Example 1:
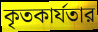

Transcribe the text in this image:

কৃতকার্যতার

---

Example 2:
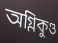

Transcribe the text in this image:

অগ্নিকুণ্ড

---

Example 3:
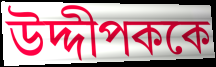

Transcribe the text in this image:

উদ্দীপককে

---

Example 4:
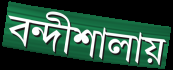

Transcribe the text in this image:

বন্দীশালায়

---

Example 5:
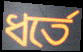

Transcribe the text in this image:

ধর্তে